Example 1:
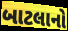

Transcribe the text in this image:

બાટલાનો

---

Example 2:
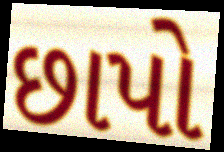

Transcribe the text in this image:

છાપો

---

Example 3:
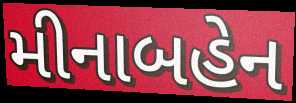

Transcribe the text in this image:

મીનાબહેન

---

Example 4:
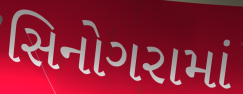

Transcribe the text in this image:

સિનોગરામાં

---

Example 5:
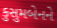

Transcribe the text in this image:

કુસુમબેનને